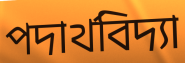
পদাৰ্থবিদ্যা